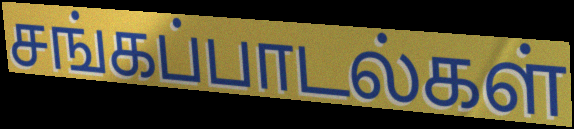
சங்கப்பாடல்கள்